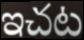
ఇచట